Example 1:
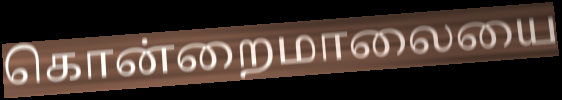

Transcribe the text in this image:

கொன்றைமாலையை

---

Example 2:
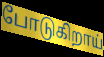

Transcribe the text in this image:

போடுகிறாய்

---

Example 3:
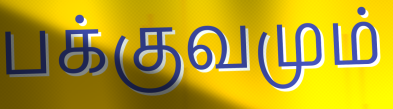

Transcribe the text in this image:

பக்குவமும்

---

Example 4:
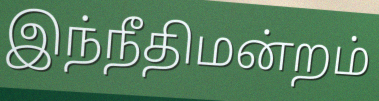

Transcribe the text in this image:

இந்நீதிமன்றம்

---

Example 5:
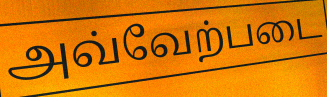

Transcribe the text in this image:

அவ்வேற்படை